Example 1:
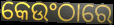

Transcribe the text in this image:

କେଉଂଠାରେ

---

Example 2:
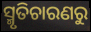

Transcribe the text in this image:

ସ୍ମୃତିଚାରଣରୁ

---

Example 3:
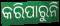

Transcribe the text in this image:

କରିପାରୁନି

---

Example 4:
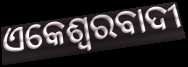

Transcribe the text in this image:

ଏକେଶ୍ଵରବାଦୀ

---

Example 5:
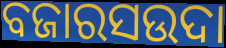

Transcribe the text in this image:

ବଜାରସଉଦା